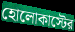
হোলোকাস্টের